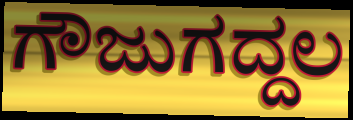
ಗೌಜುಗದ್ದಲ